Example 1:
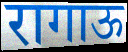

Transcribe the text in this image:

रागाऊ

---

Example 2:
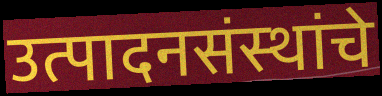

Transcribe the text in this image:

उत्पादनसंस्थांचे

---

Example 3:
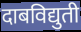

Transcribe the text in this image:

दाबविद्युती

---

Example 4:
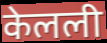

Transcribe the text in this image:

केलली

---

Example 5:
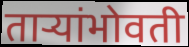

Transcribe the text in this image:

ताऱ्यांभोवती